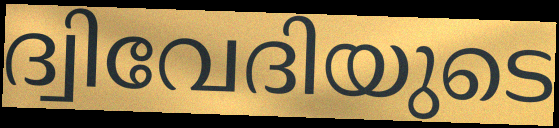
ദ്വിവേദിയുടെ